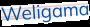
Weligama